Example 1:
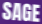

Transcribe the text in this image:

SAGE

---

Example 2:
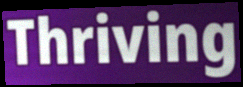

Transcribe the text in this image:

Thriving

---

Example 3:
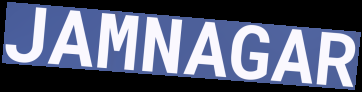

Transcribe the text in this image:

JAMNAGAR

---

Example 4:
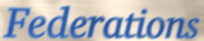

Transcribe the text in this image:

Federations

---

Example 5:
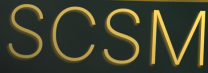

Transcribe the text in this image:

SCSM